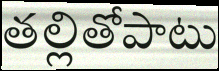
తల్లితోపాటు